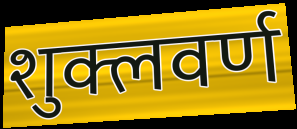
शुक्लवर्ण